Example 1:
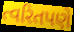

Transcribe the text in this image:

ત્વરિતપણે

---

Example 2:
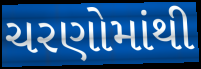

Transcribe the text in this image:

ચરણોમાંથી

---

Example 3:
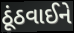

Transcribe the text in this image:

ઠૂંઠવાઈને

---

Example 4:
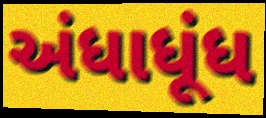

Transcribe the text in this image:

અંધાધૂંધ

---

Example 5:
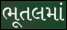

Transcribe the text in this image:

ભૂતલમાં